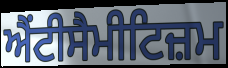
ਐਂਟੀਸੈਮੀਟਿਜ਼ਮ